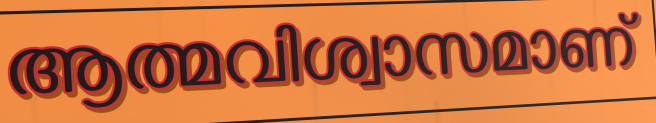
ആത്മവിശ്വാസമാണ്